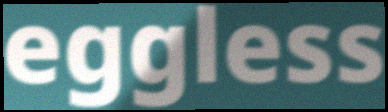
eggless